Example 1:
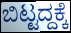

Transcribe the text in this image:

ಬಿಟ್ಟದ್ದಕ್ಕೆ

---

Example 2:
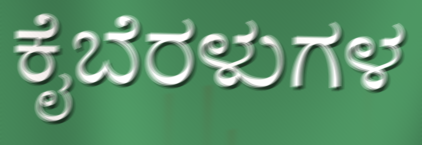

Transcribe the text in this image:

ಕೈಬೆರಳುಗಳ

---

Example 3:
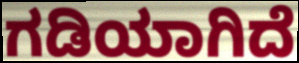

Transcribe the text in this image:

ಗಡಿಯಾಗಿದೆ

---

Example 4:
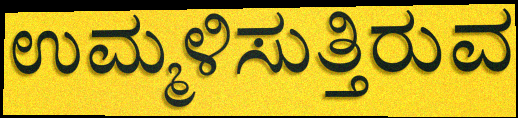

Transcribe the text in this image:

ಉಮ್ಮಳಿಸುತ್ತಿರುವ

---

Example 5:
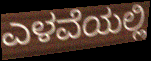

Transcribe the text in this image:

ಎಳವೆಯಲ್ಲಿ